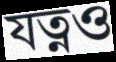
যত্নও